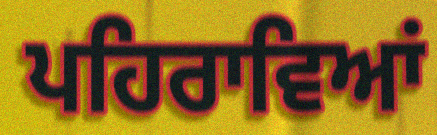
ਪਹਿਰਾਵਿਆਂ